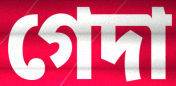
গেদা